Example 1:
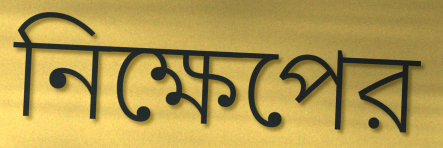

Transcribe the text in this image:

নিক্ষেপের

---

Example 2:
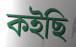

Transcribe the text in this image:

কইছি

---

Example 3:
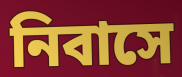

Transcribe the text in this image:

নিবাসে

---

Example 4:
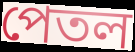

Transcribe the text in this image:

পেতল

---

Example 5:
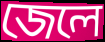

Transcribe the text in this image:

জেলে